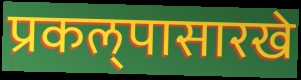
प्रकल्पासारखे